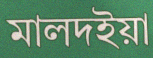
মালদইয়া